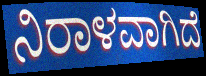
ನಿರಾಳವಾಗಿದೆ